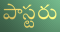
పాస్టరు